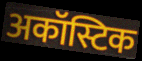
अकॉस्टिक